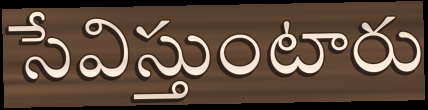
సేవిస్తుంటారు